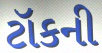
ટૉકની